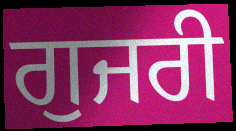
ਗੁਜਰੀ